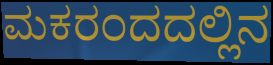
ಮಕರಂದದಲ್ಲಿನ